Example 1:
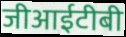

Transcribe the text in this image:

जीआईटीबी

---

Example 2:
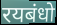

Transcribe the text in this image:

रयबंधो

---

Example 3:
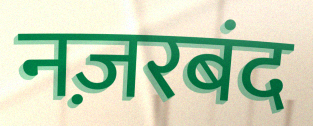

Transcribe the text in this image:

नज़रबंद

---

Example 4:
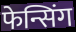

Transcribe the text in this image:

फेन्सिंग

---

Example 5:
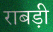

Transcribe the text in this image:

राबड़ी